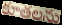
కూతలను